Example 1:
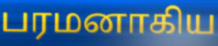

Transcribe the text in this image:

பரமனாகிய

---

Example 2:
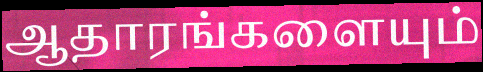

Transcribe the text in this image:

ஆதாரங்களையும்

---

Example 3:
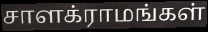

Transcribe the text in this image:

சாளக்ராமங்கள்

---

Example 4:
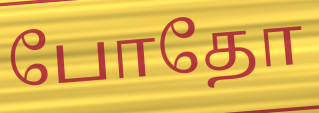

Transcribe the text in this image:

போதோ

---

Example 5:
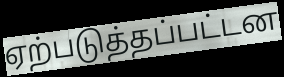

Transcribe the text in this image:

ஏற்படுத்தப்பட்டன